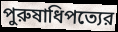
পুরুষাধিপত্যের